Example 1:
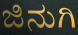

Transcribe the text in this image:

ಜಿನುಗಿ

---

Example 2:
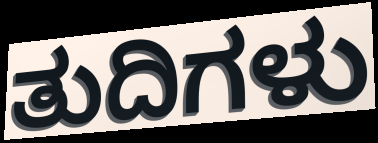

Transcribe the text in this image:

ತುದಿಗಳು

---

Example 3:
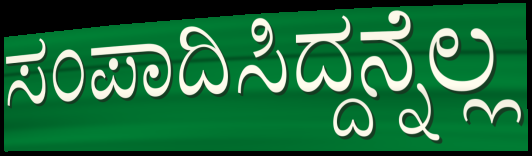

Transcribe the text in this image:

ಸಂಪಾದಿಸಿದ್ದನ್ನೆಲ್ಲ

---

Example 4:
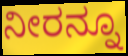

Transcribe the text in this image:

ನೀರನ್ನೂ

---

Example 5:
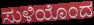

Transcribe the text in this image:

ಸುಳಿಯೊಂದ